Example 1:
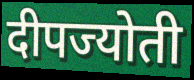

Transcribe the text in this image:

दीपज्योती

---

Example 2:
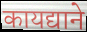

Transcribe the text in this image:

कायद्याने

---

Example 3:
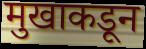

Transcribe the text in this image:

मुखाकडून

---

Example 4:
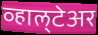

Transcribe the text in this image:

व्हाल्टेअर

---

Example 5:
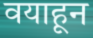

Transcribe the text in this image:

वयाहून